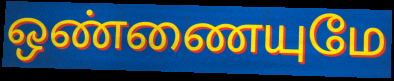
ஒண்ணையுமே